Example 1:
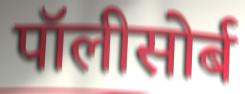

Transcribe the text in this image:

पॉलीसोर्ब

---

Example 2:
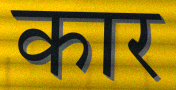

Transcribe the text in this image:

कार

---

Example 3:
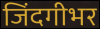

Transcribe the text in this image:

जिंदगीभर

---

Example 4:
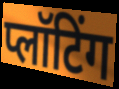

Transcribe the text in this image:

प्लॉटिंग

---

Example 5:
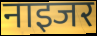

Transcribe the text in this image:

नाइजर